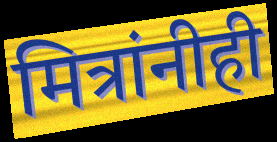
मित्रांनीही